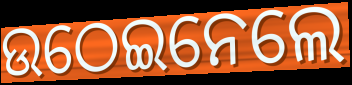
ଉଠେଇନେଲେ